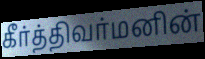
கீர்த்திவர்மனின்